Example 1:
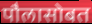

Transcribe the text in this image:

पौलासोबत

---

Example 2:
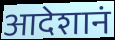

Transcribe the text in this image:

आदेशानं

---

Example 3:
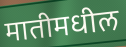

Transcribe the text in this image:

मातीमधील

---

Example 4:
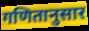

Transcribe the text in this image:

गणितानुसार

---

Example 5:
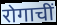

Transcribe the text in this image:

रोगाचीं